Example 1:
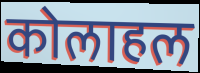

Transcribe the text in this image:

कोलाहल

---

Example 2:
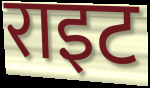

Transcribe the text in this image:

राइट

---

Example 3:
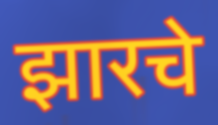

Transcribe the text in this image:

झारचे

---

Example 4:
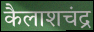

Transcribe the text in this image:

कैलाशचंद्र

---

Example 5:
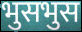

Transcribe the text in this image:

भुसभुस